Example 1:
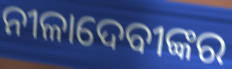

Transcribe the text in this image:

ନୀଳାଦେବୀଙ୍କର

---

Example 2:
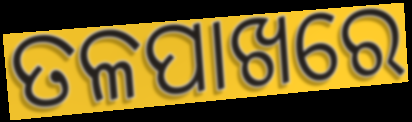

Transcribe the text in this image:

ତଳପାଖରେ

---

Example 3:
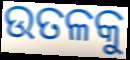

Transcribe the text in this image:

ଉତଳକୁ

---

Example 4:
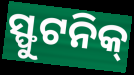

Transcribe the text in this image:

ସ୍ଫୁଟନିକ୍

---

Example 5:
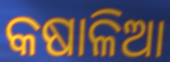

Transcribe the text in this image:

କଷାଳିଆ